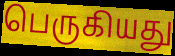
பெருகியது